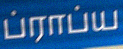
ப்ராப்ய